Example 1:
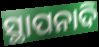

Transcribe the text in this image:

ସ୍ଥାପନାଦି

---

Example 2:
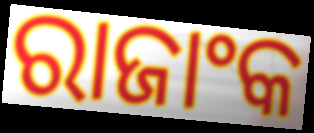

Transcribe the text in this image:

ରାଜାଂକ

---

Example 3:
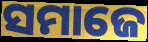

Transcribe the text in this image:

ସମାଜେ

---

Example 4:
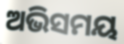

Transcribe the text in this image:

ଅଭିସମୟ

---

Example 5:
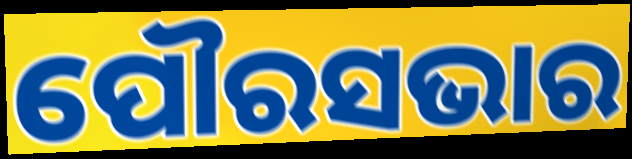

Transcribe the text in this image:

ପୌରସଭାର